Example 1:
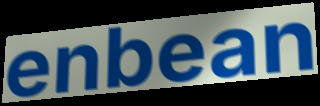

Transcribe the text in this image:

enbean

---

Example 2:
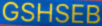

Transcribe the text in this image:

GSHSEB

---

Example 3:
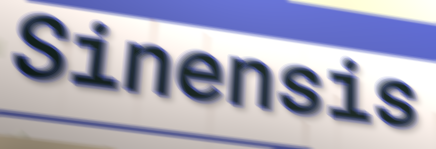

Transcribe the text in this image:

Sinensis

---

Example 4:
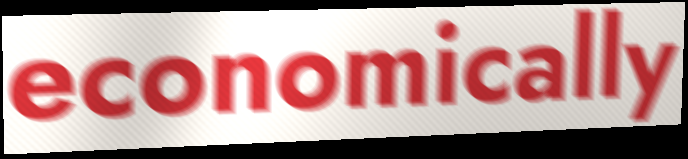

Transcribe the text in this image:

economically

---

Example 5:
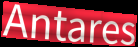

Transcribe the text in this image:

Antares